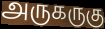
அருகருகு